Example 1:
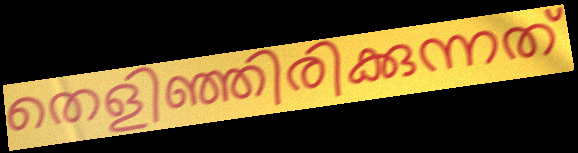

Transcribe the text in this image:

തെളിഞ്ഞിരിക്കുന്നത്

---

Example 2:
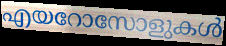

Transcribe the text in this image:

എയറോസോളുകൾ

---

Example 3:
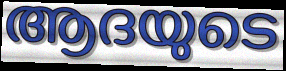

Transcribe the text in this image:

ആദയുടെ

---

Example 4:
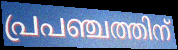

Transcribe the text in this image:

പ്രപഞ്ചത്തിന്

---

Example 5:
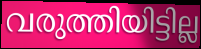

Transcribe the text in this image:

വരുത്തിയിട്ടില്ല